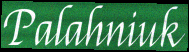
Palahniuk